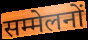
सम्‍मेलनों